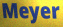
Meyer